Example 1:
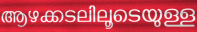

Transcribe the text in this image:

ആഴക്കടലിലൂടെയുള്ള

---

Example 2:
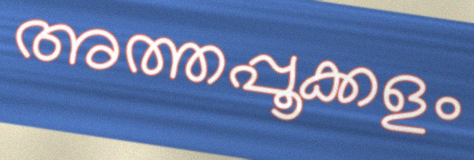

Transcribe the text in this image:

അത്തപ്പൂക്കളം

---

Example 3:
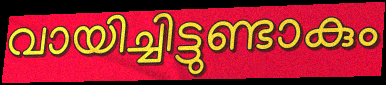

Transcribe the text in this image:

വായിച്ചിട്ടുണ്ടാകും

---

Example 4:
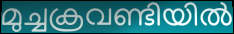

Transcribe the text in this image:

മുച്ചക്രവണ്ടിയിൽ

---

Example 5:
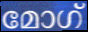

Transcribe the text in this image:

മോഗ്